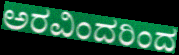
ಅರವಿಂದರಿಂದ